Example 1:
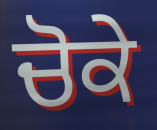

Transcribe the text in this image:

ਚੋਕੇ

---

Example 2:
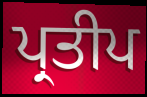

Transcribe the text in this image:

ਪ੍ਰਤੀਪ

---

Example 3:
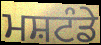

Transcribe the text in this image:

ਮਸ਼ਟੰਡੇ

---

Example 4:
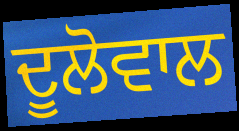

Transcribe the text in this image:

ਦੂਲੋਵਾਲ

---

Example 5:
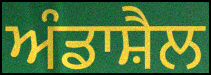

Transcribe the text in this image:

ਅੰਡਾਸ਼ੈਲ